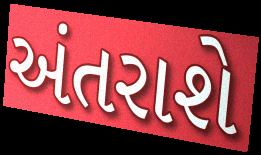
અંતરાશે